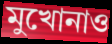
মুখোনাও